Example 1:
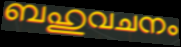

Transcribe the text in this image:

ബഹുവചനം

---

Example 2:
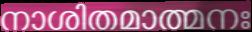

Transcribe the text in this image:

നാശിതമാത്മനഃ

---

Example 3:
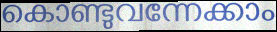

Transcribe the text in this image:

കൊണ്ടുവന്നേക്കാം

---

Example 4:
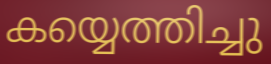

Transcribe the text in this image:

കയ്യെത്തിച്ചു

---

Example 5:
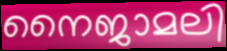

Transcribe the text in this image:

നൈജാമലി